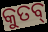
କୁତବ୍